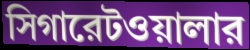
সিগারেটওয়ালার